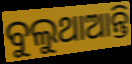
ବୁଲୁଥାଆନ୍ତି